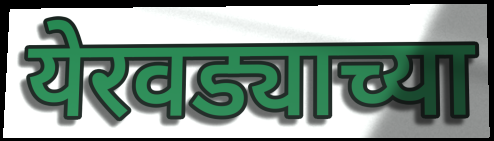
येरवड्याच्या